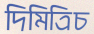
দিমিত্রিচ